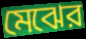
মেঝের